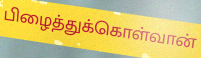
பிழைத்துக்கொள்வான்